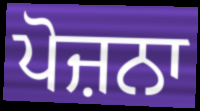
ਪੋਜ਼ਨਾ